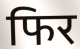
फिर